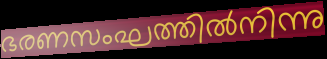
ഭരണസംഘത്തിൽനിന്നു